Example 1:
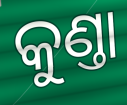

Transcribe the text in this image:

କୁଣ୍ତା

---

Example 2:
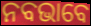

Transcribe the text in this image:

ନବଭାବେ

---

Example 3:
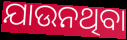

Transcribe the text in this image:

ଯାଉନଥିବା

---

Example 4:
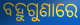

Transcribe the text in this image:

ବହୁଗୁଣାରେ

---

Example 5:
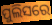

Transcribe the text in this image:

ପୁଲିସରେ